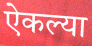
ऐकल्या